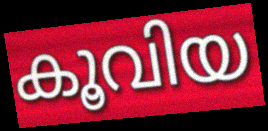
കൂവിയ